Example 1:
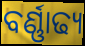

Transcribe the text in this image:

ବର୍ଣ୍ଣାଢ୍ୟ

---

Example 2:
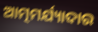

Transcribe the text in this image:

ଆତ୍ମମର୍ଯ୍ୟାଦାର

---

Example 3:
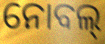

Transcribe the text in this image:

ନୋବଲ୍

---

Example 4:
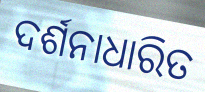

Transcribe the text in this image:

ଦର୍ଶନାଧାରିତ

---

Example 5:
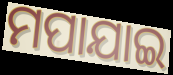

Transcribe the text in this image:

ମପାଯାଇ